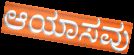
ಆಯಾಸವು